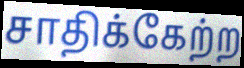
சாதிக்கேற்ற